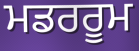
ਮਡਰਰੂਮ